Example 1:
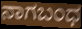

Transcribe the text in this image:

ನಾಗಬಂಧ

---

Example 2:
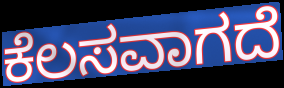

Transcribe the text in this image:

ಕೆಲಸವಾಗದೆ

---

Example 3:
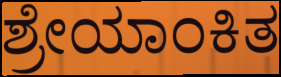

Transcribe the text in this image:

ಶ್ರೇಯಾಂಕಿತ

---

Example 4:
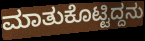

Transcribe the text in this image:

ಮಾತುಕೊಟ್ಟಿದ್ದನು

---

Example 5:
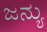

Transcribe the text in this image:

ಜನ್ಯು